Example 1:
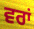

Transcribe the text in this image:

ਵਰਾਂ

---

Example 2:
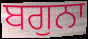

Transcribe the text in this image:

ਬਗੁਨਾ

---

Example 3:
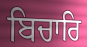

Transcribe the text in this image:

ਬਿਚਾਰਿ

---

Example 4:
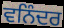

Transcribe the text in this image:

ਵਨਿੰਦਰ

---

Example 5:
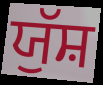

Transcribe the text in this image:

ਯੁੱਸ਼